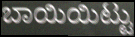
ಬಾಯಿಯಿಟ್ಟು